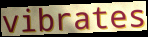
vibrates